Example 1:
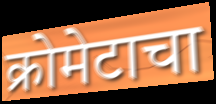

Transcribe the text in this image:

क्रोमेटाचा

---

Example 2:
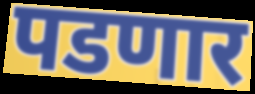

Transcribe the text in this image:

पडणार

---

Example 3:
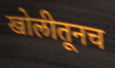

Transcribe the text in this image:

खोलीतूनच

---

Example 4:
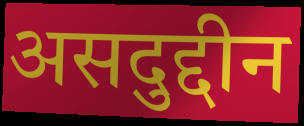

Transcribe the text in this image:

असदुद्दीन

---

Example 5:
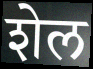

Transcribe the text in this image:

शेल